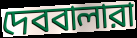
দেববালারা